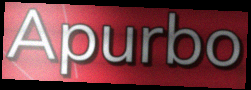
Apurbo